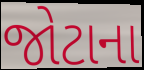
જોટાના